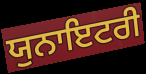
ਯੁਨਾਇਟਰੀ